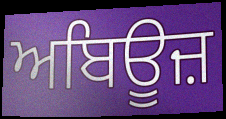
ਅਬਿਊਜ਼